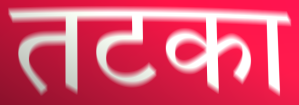
तटका